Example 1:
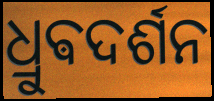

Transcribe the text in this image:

ଧ୍ରୁଵଦର୍ଶନ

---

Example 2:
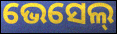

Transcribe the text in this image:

ଭେସେଲ୍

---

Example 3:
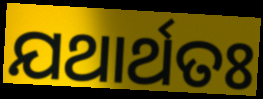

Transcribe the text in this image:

ଯଥାର୍ଥତଃ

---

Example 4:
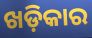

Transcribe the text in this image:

ଖଡ଼ିକାର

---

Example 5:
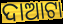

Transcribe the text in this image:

ଦାଆଟା